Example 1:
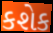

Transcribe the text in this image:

કશેક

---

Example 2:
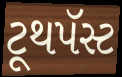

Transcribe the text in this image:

ટૂથપૅસ્ટ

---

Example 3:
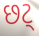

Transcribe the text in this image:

છટ્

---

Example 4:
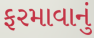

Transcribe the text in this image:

ફરમાવાનું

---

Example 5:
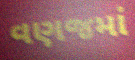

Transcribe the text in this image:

વણજમાં